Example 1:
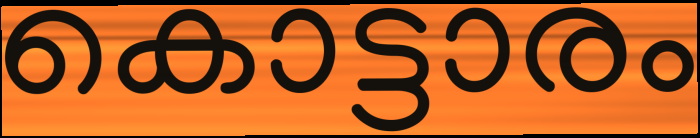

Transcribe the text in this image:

കൊട്ടാരം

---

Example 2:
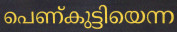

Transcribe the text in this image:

പെണ്കുട്ടിയെന്ന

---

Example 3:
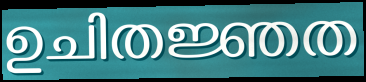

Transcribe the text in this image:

ഉചിതജ്ഞത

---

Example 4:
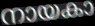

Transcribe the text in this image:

നായകാ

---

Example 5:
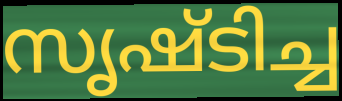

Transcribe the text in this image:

സൃഷ്ടിച്ച